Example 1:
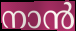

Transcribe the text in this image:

നാൻ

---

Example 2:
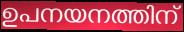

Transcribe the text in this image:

ഉപനയനത്തിന്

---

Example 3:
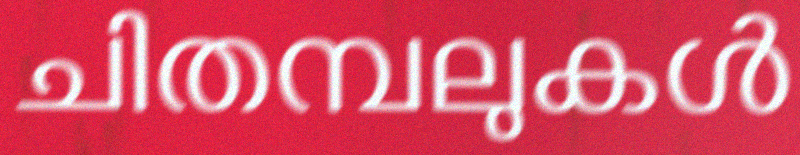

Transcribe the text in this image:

ചിതമ്പലുകൾ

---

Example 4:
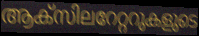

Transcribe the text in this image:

ആക്സിലറേറ്ററുകളുടെ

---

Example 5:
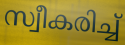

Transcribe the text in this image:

സ്വീകരിച്ച്